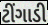
ટીંગાડી